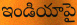
ఇండియాపై